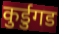
कुर्डुगड